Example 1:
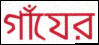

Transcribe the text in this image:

গাঁযের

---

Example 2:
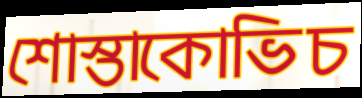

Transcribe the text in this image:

শোস্তাকোভিচ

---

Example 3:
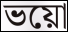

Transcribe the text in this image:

ভয়ো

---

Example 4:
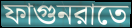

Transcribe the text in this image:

ফাগুনরাতে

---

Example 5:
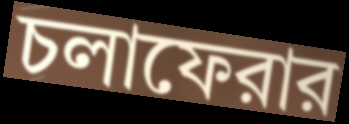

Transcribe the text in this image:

চলাফেরার